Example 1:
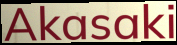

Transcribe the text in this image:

Akasaki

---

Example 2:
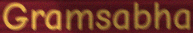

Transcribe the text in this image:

Gramsabha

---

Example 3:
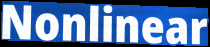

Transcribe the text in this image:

Nonlinear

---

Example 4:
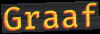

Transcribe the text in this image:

Graaf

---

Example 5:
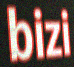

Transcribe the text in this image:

bizi